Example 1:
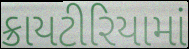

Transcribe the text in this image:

ક્રાયટીરિયામાં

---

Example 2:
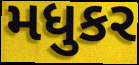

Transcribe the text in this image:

મધુકર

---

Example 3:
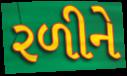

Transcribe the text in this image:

રળીને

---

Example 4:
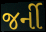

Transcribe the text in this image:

જર્ની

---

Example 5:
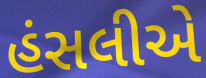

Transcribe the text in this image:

હંસલીએ